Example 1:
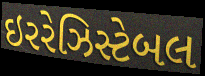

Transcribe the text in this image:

ઇરરેઝિસ્ટેબલ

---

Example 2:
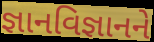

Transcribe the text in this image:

જ્ઞાનવિજ્ઞાનને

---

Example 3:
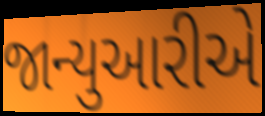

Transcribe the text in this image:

જાન્યુઆરીએ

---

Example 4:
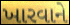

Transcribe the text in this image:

ખારવાને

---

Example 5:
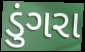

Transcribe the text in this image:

ડુંગરા